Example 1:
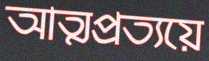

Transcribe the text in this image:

আত্মপ্রত্যয়ে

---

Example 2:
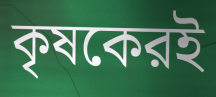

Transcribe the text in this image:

কৃষকেরই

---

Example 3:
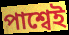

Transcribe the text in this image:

পাশ্বেই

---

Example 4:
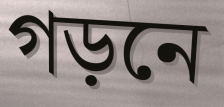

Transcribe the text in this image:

গড়নে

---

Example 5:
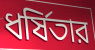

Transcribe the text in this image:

ধর্ষিতার